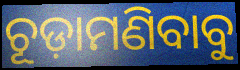
ଚୂଡ଼ାମଣିବାବୁ